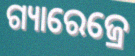
ଗ୍ୟାରେଜ୍ରେ